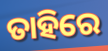
ତାହିରେ